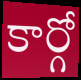
కార్గో